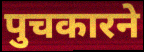
पुचकारने